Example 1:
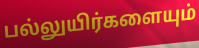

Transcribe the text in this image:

பல்லுயிர்களையும்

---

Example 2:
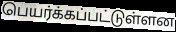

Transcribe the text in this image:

பெயர்க்கப்பட்டுள்ளன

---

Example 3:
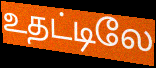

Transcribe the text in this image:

உதட்டிலே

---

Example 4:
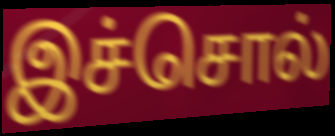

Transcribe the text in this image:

இச்சொல்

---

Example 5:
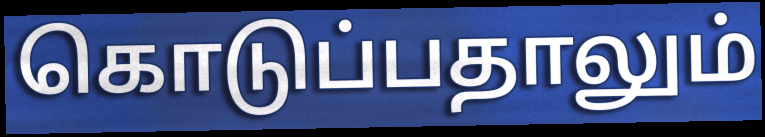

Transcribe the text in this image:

கொடுப்பதாலும்